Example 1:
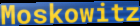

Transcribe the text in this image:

Moskowitz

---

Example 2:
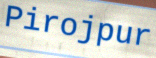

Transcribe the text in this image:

Pirojpur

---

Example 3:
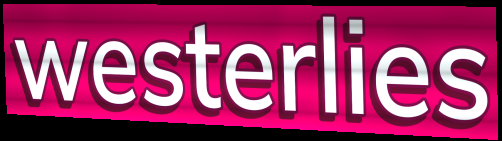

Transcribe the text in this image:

westerlies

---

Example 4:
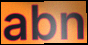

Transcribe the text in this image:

abn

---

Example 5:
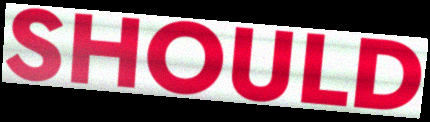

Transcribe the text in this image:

SHOULD